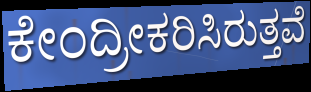
ಕೇಂದ್ರೀಕರಿಸಿರುತ್ತವೆ